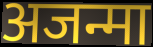
अजन्मा